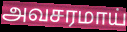
அவசரமாய்